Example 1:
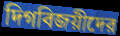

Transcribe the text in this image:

দিগবিজয়ীদের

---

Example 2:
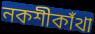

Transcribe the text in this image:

নকশীকাঁথা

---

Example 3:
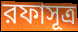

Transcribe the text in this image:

রফাসূত্র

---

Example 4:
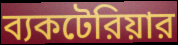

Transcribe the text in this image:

ব্যকটেরিয়ার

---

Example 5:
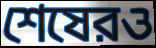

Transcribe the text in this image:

শেষেরও